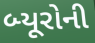
બ્યૂરોની